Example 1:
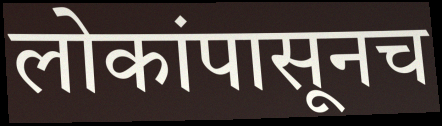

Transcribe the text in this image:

लोकांपासूनच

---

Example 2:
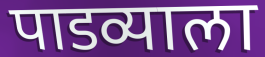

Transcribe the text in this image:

पाडव्याला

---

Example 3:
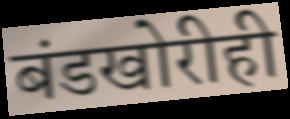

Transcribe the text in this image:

बंडखोरीही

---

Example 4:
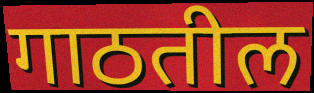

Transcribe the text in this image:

गाठतील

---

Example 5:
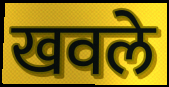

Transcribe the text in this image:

खवले